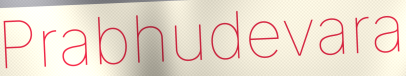
Prabhudevara